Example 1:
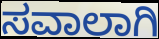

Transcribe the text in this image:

ಸವಾಲಾಗಿ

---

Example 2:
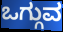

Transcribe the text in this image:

ಒಗ್ಗುವ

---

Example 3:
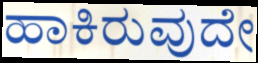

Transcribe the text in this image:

ಹಾಕಿರುವುದೇ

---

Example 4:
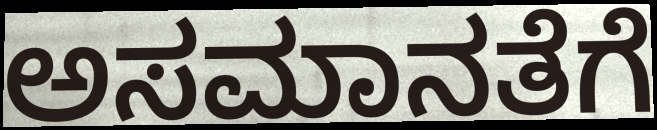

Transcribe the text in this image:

ಅಸಮಾನತೆಗೆ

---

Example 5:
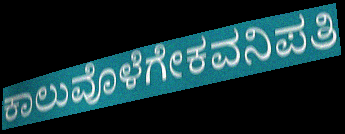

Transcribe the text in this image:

ಕಾಲುವೊಳೆಗೇಕವನಿಪತಿ